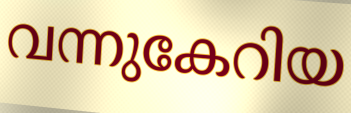
വന്നുകേറിയ